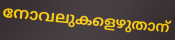
നോവലുകളെഴുതാന്